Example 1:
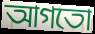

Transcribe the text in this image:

আগতো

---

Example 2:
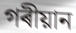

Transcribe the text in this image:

গৰীয়ান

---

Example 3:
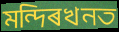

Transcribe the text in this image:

মন্দিৰখনত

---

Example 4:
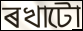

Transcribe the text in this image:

ৰখাটো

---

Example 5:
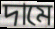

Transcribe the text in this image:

দামে